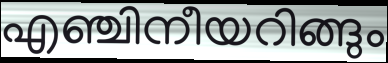
എഞ്ചിനീയറിങ്ങും